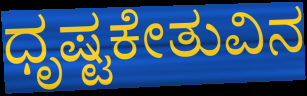
ಧೃಷ್ಟಕೇತುವಿನ